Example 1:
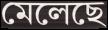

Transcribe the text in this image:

মেলেছে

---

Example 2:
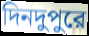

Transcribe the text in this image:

দিনদুপুরে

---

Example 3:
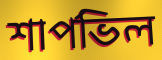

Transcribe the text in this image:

শার্পভিল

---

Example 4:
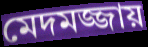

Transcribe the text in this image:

মেদমজ্জায়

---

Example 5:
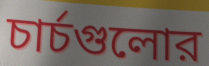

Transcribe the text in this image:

চার্চগুলোর